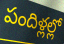
పందిళ్లల్లో